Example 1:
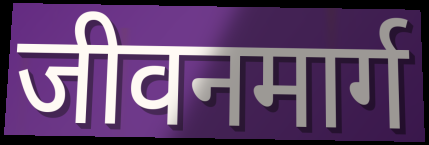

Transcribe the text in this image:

जीवनमार्ग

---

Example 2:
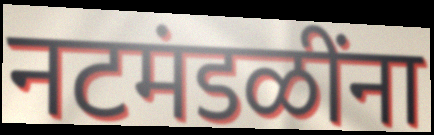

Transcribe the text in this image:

नटमंडळींना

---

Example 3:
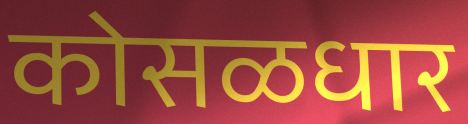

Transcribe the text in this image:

कोसळधार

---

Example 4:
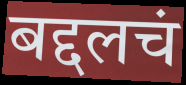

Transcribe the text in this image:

बद्दलचं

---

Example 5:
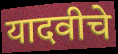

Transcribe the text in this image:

यादवीचे